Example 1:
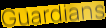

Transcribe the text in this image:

Guardians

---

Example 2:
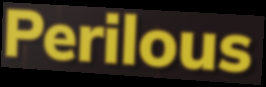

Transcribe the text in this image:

Perilous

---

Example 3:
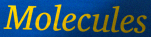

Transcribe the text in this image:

Molecules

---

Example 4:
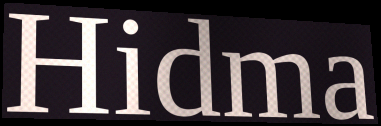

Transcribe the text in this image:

Hidma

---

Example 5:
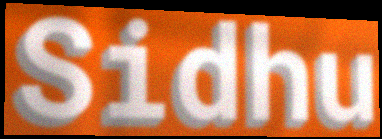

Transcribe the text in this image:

Sidhu